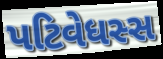
પટિવેધસ્સ